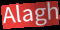
Alagh